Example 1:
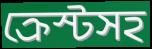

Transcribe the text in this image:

ক্রেস্টসহ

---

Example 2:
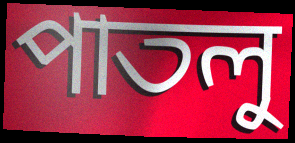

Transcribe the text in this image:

পাতলু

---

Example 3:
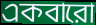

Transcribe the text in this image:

একবারো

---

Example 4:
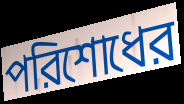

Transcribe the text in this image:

পরিশোধের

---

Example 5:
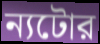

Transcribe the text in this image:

ন্যটোর